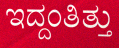
ಇದ್ದಂತಿತ್ತು